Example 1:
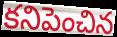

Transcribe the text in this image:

కనిపెంచిన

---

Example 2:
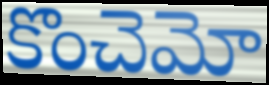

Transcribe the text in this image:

కొంచెమో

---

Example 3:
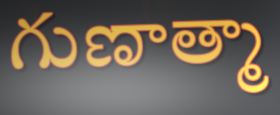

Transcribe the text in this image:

గుణాత్మా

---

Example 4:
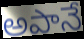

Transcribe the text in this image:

అపానే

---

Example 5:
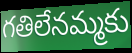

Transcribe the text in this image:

గతిలేనమ్మకు